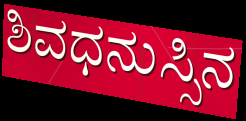
ಶಿವಧನುಸ್ಸಿನ